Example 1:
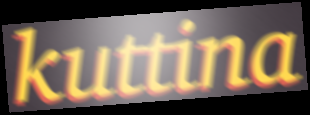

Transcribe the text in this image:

kuttina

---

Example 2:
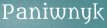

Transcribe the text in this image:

Paniwnyk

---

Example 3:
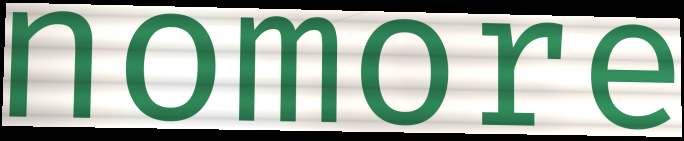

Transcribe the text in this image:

nomore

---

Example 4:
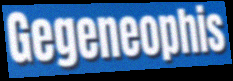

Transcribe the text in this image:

Gegeneophis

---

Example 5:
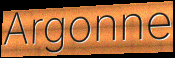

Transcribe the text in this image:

Argonne